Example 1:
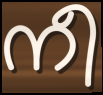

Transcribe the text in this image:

നീ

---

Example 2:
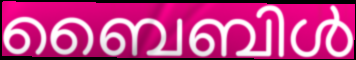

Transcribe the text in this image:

ബൈബിൾ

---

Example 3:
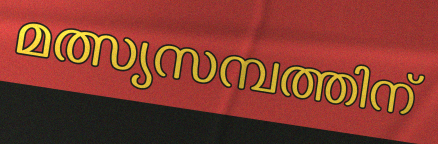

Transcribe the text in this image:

മത്സ്യസമ്പത്തിന്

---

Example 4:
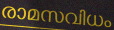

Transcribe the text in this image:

രാമസവിധം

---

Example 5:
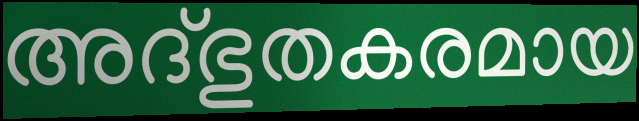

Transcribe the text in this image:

അദ്ഭുതകരമായ